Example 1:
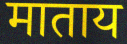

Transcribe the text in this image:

माताय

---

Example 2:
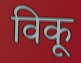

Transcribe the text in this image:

विकू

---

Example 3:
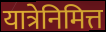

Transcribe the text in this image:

यात्रेनिमित्त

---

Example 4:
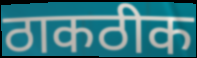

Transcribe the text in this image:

ठाकठीक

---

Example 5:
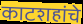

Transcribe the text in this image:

काटशहांचे